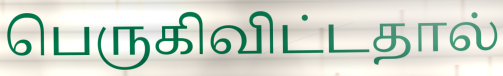
பெருகிவிட்டதால்